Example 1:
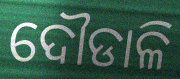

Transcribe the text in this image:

ଦୌଡାଳି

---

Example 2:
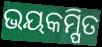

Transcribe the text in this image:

ଭୟକମ୍ପିତ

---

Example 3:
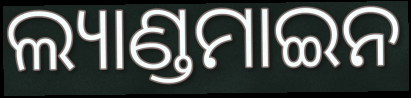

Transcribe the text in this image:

ଲ୍ୟାଣ୍ଡମାଇନ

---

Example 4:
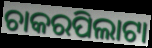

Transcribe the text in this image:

ଚାକରପିଲାଟା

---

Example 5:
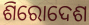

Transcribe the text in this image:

ଶିରୋଦେଶ